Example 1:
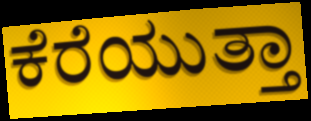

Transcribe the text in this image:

ಕೆರೆಯುತ್ತಾ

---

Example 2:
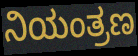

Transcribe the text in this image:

ನಿಯಂತ್ರಣ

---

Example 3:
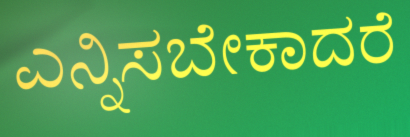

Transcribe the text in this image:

ಎನ್ನಿಸಬೇಕಾದರೆ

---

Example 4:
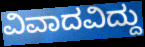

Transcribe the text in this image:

ವಿವಾದವಿದ್ದು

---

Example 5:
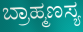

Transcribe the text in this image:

ಬ್ರಾಹ್ಮಣಸ್ಯ